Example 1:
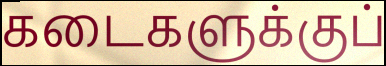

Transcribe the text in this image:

கடைகளுக்குப்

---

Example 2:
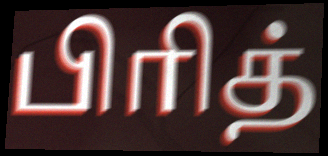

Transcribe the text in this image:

பிரித்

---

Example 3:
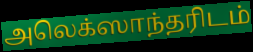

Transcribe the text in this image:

அலெக்ஸாந்தரிடம்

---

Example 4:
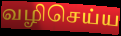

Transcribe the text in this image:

வழிசெய்ய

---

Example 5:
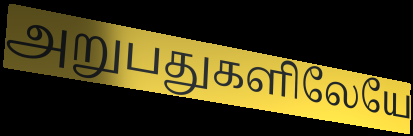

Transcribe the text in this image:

அறுபதுகளிலேயே